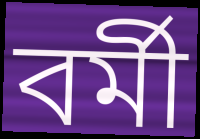
বর্মী